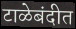
टाळेबंदीत